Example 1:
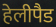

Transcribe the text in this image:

हेलीपैड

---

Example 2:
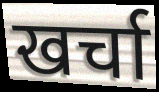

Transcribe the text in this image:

खर्चा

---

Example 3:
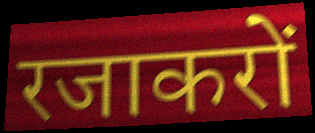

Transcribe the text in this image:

रजाकरों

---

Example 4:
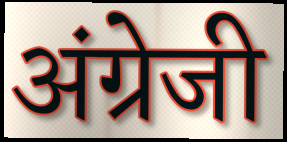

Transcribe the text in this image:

अंग्रेजी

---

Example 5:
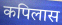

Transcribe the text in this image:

कपिलास